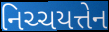
નિચ્ચયત્તેન